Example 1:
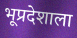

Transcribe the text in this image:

भूप्रदेशाला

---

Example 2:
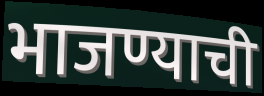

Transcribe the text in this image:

भाजण्याची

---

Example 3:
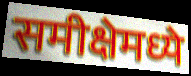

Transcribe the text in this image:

समीक्षेमध्ये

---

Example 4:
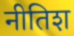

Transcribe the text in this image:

नीतिश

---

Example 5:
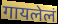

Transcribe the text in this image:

गायलेलं